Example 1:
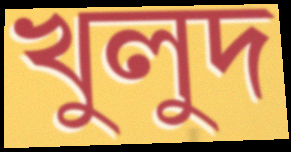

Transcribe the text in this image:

খুলুদ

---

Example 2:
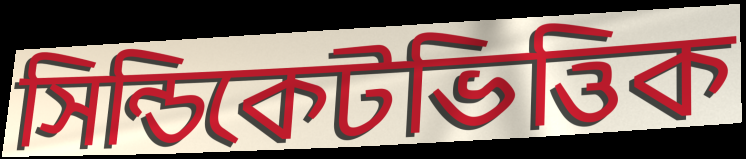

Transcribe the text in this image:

সিন্ডিকেটভিত্তিক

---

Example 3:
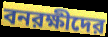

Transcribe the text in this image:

বনরক্ষীদের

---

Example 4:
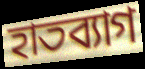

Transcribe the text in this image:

হাতব্যাগ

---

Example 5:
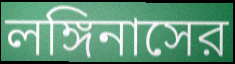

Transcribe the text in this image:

লঙ্গিনাসের